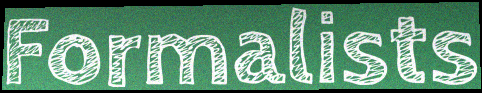
Formalists